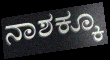
ನಾಶಕ್ಕೂ